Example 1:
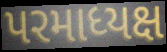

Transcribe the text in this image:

પરમાધ્યક્ષ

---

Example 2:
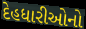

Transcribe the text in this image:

દેહધારીઓનો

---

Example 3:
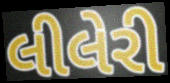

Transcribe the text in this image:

લીલેરી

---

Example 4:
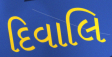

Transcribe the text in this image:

દિવાલિ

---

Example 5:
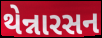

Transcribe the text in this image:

થેન્નારસન